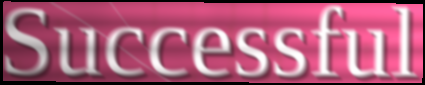
Successful